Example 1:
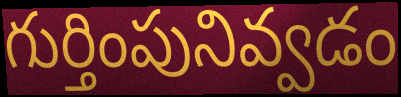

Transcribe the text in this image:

గుర్తింపునివ్వడం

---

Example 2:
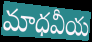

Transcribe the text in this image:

మాధవీయ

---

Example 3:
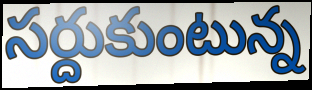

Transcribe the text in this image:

సర్దుకుంటున్న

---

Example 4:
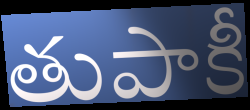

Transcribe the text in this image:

తుపాకీ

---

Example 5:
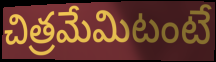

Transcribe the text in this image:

చిత్రమేమిటంటే